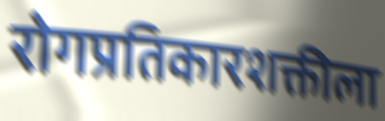
रोगप्रतिकारशक्तीला